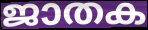
ജാതക